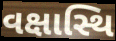
વક્ષાસ્થિ